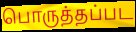
பொருத்தப்பட